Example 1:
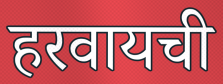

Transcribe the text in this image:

हरवायची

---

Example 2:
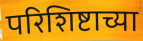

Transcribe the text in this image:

परिशिष्टाच्या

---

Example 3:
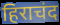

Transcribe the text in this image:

हिराचंद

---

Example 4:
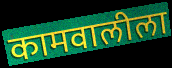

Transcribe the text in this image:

कामवालीला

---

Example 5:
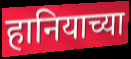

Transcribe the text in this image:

हानियाच्या